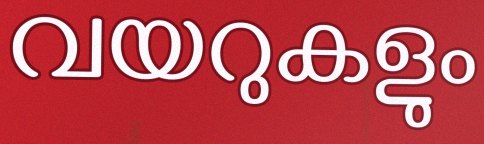
വയറുകളും